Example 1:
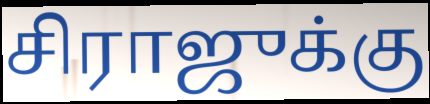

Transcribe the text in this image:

சிராஜுக்கு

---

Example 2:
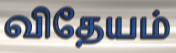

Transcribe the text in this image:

விதேயம்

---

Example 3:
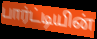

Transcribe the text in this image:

பார்ட்டியின்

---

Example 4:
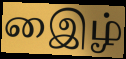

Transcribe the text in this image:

இைழ்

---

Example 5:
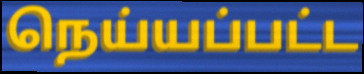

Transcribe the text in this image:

நெய்யப்பட்ட